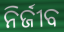
ନିର୍ଜୀବ